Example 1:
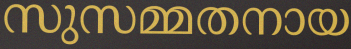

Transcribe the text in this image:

സുസമ്മതനായ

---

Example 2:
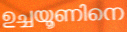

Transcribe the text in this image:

ഉച്ചയൂണിനെ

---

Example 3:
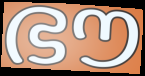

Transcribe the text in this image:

ഭൗ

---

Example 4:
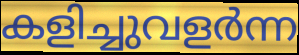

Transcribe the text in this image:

കളിച്ചുവളർന്ന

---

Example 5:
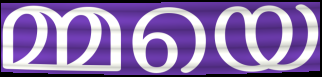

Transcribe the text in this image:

മ്മയെ